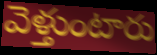
వెళ్తుంటారు